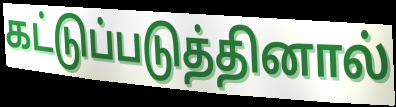
கட்டுப்படுத்தினால்